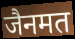
जैनमत